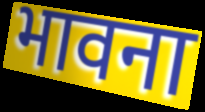
भावना